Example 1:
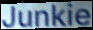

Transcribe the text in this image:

Junkie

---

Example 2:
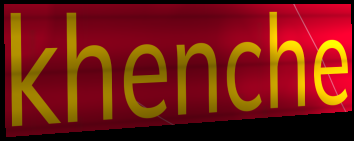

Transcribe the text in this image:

khenche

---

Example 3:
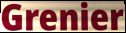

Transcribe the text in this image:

Grenier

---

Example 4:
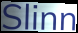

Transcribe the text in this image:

Slinn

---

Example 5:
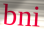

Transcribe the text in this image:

bni